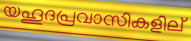
യഹൂദപ്രവാസികളില്